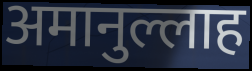
अमानुल्लाह